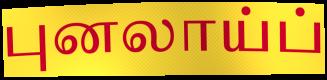
புனலாய்ப்